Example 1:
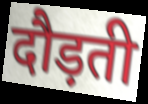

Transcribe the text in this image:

दौड़ती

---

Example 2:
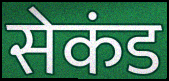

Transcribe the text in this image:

सेकंड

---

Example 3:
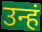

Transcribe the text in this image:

उन्हं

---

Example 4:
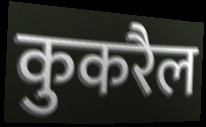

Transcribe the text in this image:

कुकरैल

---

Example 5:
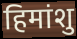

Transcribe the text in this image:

हिमांशु